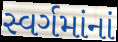
સ્વર્ગમાંનાં